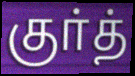
குர்த்